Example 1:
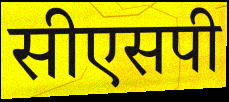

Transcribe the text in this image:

सीएसपी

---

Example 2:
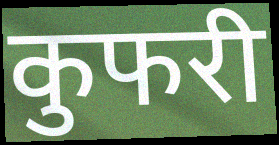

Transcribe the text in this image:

कुफरी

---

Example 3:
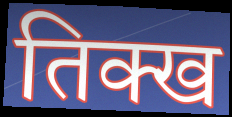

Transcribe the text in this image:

तिक्ख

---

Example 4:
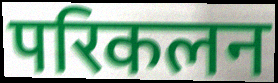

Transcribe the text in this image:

परिकलन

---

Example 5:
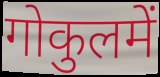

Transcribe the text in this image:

गोकुलमें